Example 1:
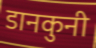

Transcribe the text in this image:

डानकुनी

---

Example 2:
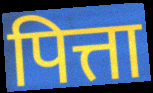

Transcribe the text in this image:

पित्ता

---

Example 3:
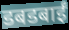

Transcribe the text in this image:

डबडबाईं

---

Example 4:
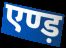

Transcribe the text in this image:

एण्ड़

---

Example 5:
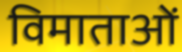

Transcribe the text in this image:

विमाताओं